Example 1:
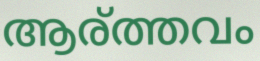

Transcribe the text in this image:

ആര്ത്തവം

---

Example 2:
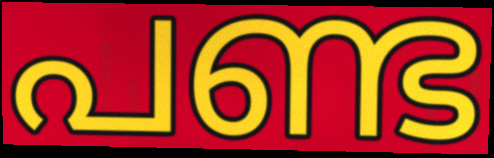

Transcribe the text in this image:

പണ്ട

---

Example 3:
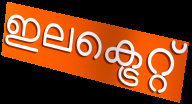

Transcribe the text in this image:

ഇലക്ട്രെറ്റ്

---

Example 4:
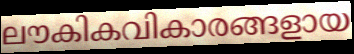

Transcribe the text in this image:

ലൗകികവികാരങ്ങളായ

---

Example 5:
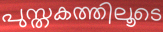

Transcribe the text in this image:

പുസ്തകത്തിലൂടെ